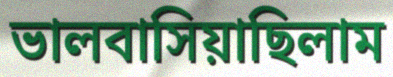
ভালবাসিয়াছিলাম